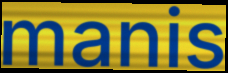
manis